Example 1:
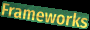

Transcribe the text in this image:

Frameworks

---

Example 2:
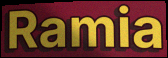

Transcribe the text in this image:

Ramia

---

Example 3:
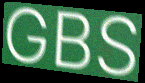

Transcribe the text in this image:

GBS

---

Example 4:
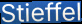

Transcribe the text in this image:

Stieffel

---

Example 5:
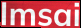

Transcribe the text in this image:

Imsai